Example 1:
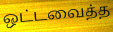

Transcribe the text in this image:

ஒட்டவைத்த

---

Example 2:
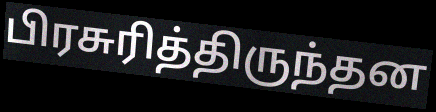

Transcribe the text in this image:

பிரசுரித்திருந்தன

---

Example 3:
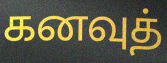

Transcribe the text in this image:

கனவுத்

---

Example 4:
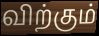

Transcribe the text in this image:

விற்கும்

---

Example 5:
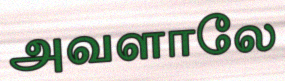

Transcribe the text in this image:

அவளாலே